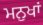
ਮਨੁਖਾਂ